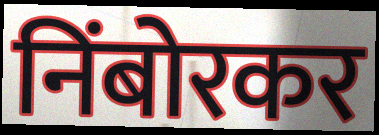
निंबोरकर